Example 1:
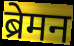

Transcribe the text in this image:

ब्रेमन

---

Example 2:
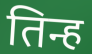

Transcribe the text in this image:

तिन्ह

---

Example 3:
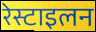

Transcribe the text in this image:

रेस्टाइलन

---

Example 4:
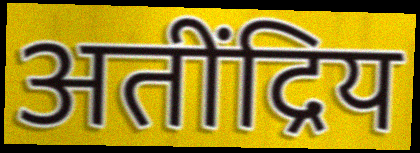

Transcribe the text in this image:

अतींद्रिय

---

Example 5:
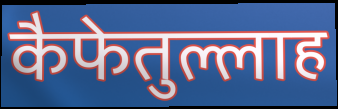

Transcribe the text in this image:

कैफेतुल्लाह